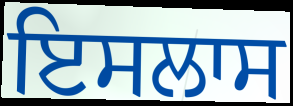
ਇਸਲਾਸ